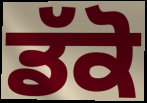
ਡੱਕੋ